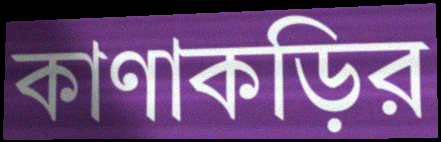
কাণাকড়ির